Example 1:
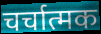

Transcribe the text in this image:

चर्चात्मक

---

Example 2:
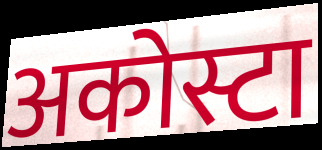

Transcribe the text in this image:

अकोस्टा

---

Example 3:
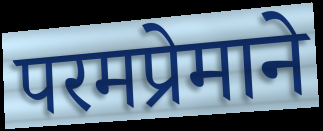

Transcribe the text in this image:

परमप्रेमाने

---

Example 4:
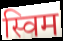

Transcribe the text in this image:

स्विम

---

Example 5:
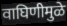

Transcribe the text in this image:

वाघिणीमुळे